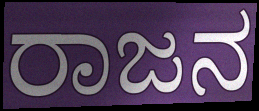
ರಾಜನ